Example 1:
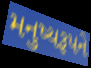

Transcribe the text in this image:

મનુષ્યરૂપને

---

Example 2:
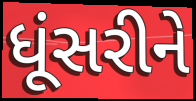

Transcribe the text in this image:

ધૂંસરીને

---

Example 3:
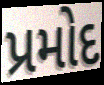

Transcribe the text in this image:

પ્રમોદ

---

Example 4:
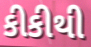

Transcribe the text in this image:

કીકીથી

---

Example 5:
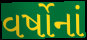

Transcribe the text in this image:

વર્ષોનાં